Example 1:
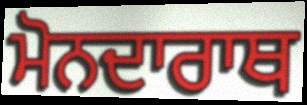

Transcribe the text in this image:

ਮੋਨਦਾਰਾਥ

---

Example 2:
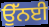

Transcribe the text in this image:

ਉੱਨਈ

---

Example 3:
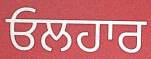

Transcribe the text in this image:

ਓਲਹਾਰ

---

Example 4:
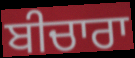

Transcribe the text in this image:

ਬੀਚਾਰਾ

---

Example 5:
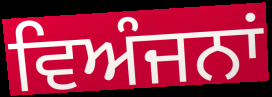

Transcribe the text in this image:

ਵਿਅੰਜਨਾਂ